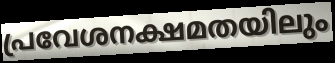
പ്രവേശനക്ഷമതയിലും